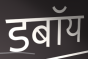
डबॉय